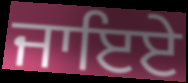
ਜਾਇਏ